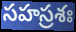
సహస్రశః